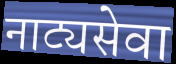
नाट्यसेवा